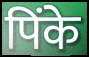
पिंके